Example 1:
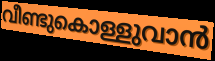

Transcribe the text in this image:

വീണ്ടുകൊള്ളുവാൻ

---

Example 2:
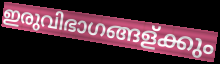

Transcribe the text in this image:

ഇരുവിഭാഗങ്ങള്ക്കും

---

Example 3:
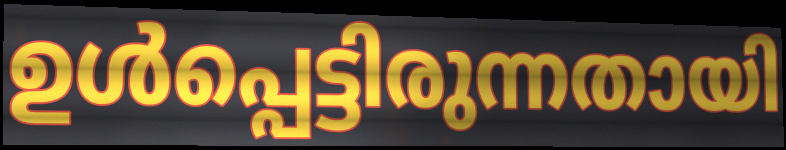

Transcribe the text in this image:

ഉൾപ്പെട്ടിരുന്നതായി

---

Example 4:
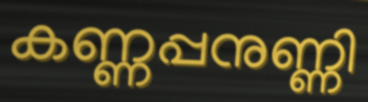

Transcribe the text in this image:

കണ്ണപ്പനുണ്ണി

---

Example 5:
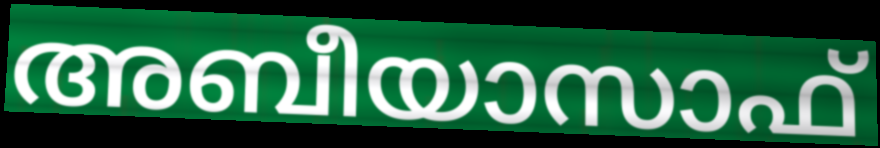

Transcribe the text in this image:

അബീയാസാഫ്